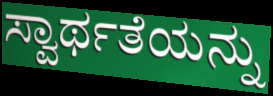
ಸ್ವಾರ್ಥತೆಯನ್ನು